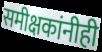
समीक्षकांनीही